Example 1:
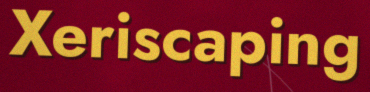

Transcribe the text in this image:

Xeriscaping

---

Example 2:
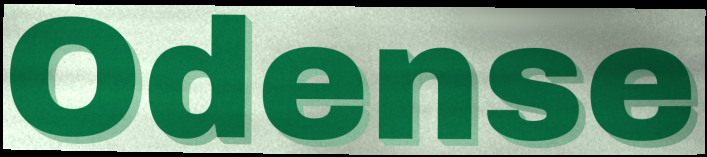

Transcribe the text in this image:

Odense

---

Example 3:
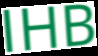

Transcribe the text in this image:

IHB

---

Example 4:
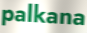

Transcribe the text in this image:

palkana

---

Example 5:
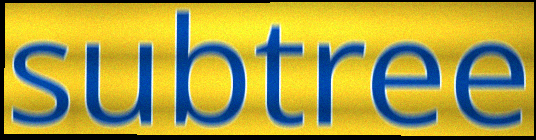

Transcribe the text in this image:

subtree